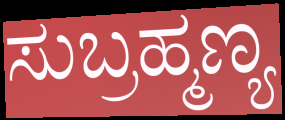
ಸುಬ್ರಹ್ಮಣ್ಯ